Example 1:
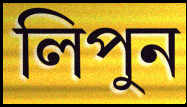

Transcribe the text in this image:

লিপুন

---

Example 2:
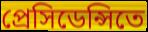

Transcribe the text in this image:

প্রেসিডেন্সিতে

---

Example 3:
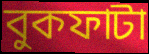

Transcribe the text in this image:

বুকফাটা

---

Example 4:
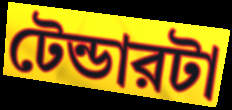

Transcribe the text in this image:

টেন্ডারটা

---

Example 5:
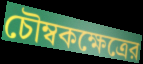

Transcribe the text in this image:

চৌম্বকক্ষেত্রের